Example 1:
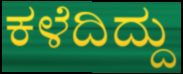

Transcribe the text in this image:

ಕಳೆದಿದ್ದು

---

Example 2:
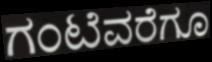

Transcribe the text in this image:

ಗಂಟೆವರೆಗೂ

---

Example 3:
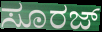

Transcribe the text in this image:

ಸೂರಜ್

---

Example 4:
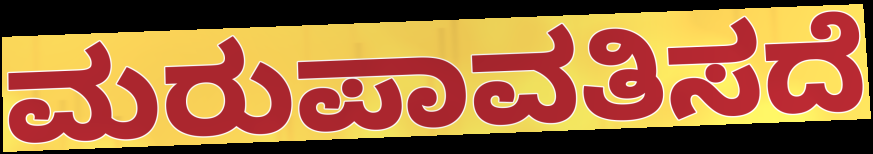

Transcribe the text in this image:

ಮರುಪಾವತಿಸದೆ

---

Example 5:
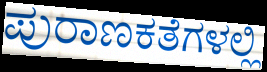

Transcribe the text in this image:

ಪುರಾಣಕತೆಗಳಲ್ಲಿ